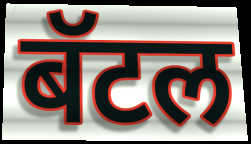
बॅटल